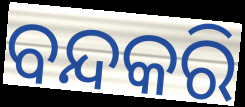
ବନ୍ଦକରି